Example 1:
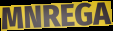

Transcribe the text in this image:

MNREGA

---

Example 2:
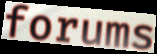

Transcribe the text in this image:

forums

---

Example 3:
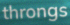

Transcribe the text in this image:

throngs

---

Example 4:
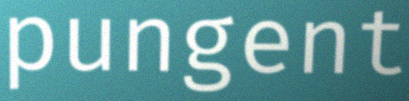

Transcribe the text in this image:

pungent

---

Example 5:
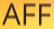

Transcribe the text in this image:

AFF